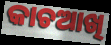
କାଚଆଖି